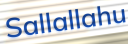
Sallallahu